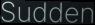
Sudden